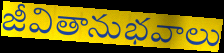
జీవితానుభవాలు